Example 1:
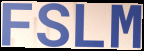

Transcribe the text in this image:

FSLM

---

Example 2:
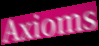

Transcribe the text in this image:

Axioms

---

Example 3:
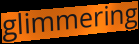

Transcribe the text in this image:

glimmering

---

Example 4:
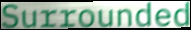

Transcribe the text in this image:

Surrounded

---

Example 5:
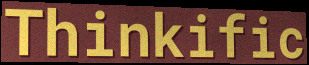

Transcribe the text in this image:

Thinkific